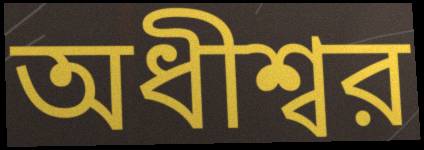
অধীশ্বর